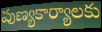
పుణ్యకార్యాలకు